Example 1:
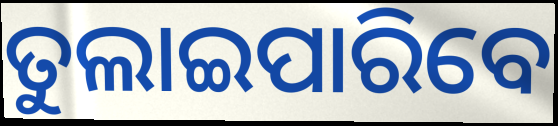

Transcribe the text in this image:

ତୁଲାଇପାରିବେ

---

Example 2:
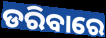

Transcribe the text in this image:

ଡରିବାରେ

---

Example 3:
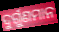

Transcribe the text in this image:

ଦୁର୍ଗୁଣମାନ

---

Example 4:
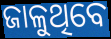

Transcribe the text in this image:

ଜାଳୁଥିବେ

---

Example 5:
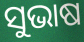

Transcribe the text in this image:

ସୁଭାଷ